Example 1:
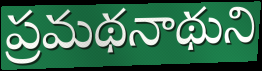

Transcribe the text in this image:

ప్రమథనాథుని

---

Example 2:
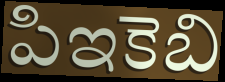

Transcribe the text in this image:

పిఇకెబి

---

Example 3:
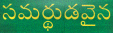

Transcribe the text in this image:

సమర్థుడవైన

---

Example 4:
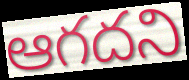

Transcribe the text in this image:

ఆగదని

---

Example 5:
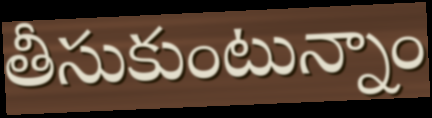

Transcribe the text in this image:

తీసుకుంటున్నాం